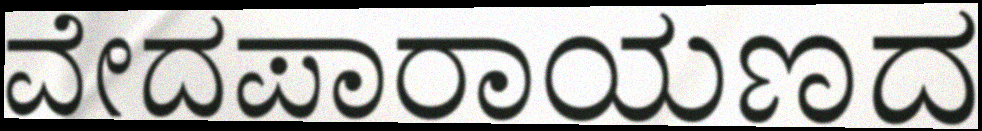
ವೇದಪಾರಾಯಣದ